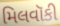
મિલવૉકી